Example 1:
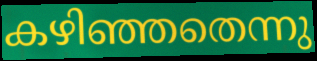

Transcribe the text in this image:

കഴിഞ്ഞതെന്നു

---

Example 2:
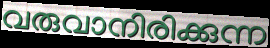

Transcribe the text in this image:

വരുവാനിരിക്കുന്ന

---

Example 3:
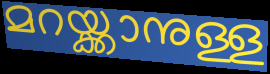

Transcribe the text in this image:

മറയ്ക്കാനുള്ള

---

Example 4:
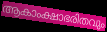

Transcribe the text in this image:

ആകാംക്ഷാഭരിതവും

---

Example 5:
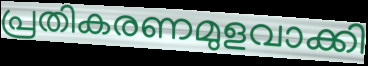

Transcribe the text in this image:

പ്രതികരണമുളവാക്കി